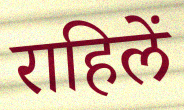
राहिलें